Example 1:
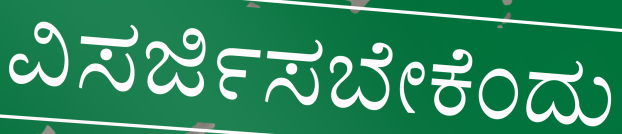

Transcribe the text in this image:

ವಿಸರ್ಜಿಸಬೇಕೆಂದು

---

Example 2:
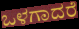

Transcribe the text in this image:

ಒಳಗಾದರೆ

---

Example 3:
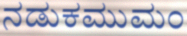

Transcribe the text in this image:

ನಡುಕಮುಮಂ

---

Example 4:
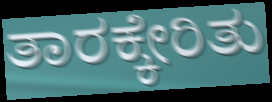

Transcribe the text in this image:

ತಾರಕ್ಕೇರಿತು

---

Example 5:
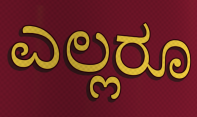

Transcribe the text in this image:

ಎಲ್ಲರೂ